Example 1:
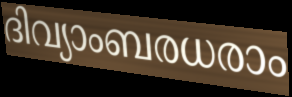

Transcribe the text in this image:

ദിവ്യാംബരധരാം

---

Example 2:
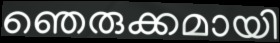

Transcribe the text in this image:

ഞെരുക്കമായി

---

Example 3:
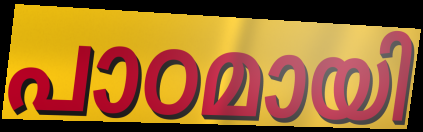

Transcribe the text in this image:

പാഠമായി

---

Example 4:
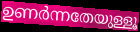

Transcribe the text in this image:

ഉണർന്നതേയുള്ളൂ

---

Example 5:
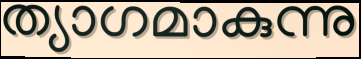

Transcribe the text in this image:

ത്യാഗമാകുന്നു